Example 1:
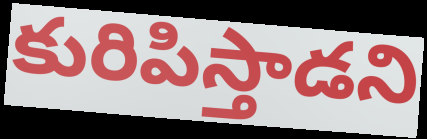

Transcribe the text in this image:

కురిపిస్తాడని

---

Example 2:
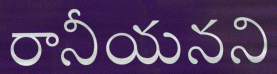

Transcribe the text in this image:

రానీయనని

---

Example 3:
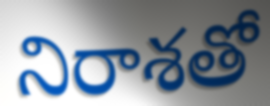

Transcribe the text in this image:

నిరాశతో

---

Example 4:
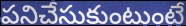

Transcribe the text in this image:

పనిచేసుకుంటుంటే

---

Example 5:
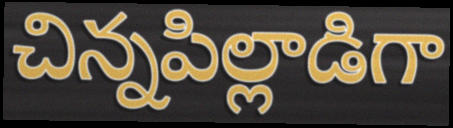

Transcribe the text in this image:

చిన్నపిల్లాడిగా